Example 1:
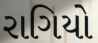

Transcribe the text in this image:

રાગિયો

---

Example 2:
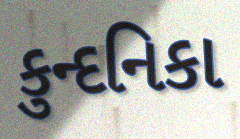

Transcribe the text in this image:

કુન્દનિકા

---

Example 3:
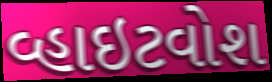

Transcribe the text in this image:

વ્હાઇટવોશ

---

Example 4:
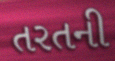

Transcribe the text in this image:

તરતની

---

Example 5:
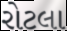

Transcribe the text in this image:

રોટલા